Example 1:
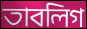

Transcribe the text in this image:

তাবলিগ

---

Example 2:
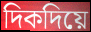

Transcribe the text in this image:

দিকদিয়ে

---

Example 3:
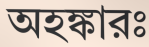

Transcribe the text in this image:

অহঙ্কারঃ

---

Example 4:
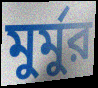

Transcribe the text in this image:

মুর্মুর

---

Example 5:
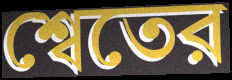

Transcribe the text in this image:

শ্বেতের